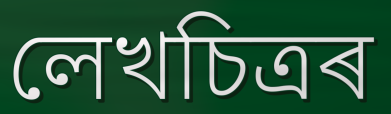
লেখচিত্ৰৰ